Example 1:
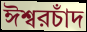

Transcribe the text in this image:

ঈশ্বরচাঁদ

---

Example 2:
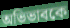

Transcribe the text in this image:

অভিভাবকে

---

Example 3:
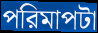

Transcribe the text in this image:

পরিমাপটা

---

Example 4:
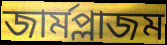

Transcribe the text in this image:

জার্মপ্লাজম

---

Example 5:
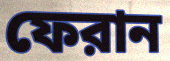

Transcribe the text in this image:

ফেরান